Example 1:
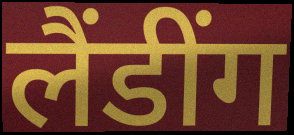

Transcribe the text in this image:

लैंडींग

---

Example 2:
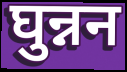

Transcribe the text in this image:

घुन्नन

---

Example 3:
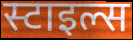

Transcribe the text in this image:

स्टाइल्स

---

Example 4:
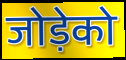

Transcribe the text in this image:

जोड़ेको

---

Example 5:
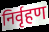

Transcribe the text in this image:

निर्वृहण